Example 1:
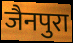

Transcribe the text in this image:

जैनपुरा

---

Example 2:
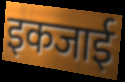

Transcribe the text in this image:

इकजाई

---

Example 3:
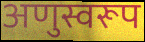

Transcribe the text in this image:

अणुस्वरूप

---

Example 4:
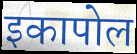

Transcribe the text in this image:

इकापोल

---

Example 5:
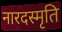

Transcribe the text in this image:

नारदस्मृति